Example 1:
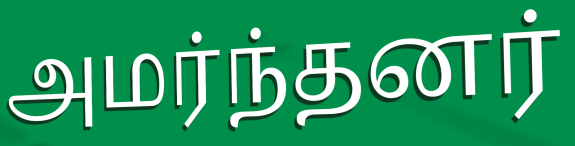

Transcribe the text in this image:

அமர்ந்தனர்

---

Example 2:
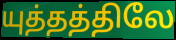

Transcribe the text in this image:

யுத்தத்திலே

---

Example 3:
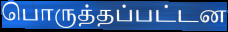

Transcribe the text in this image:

பொருத்தப்பட்டன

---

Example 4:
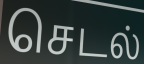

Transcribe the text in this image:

செடல்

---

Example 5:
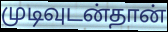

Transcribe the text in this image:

முடிவுடன்தான்